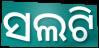
ସଲଟି